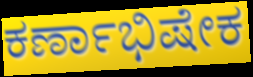
ಕರ್ಣಾಭಿಷೇಕ